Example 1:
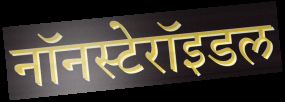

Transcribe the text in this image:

नॉनस्टेरॉइडल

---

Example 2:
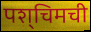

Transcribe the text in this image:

पश्चिमची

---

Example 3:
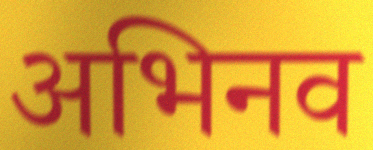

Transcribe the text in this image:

अभिनव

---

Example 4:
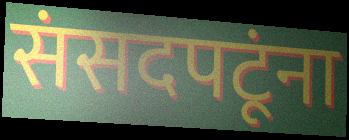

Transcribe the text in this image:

संसदपटूंना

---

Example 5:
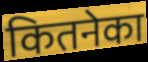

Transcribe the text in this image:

कितनेका